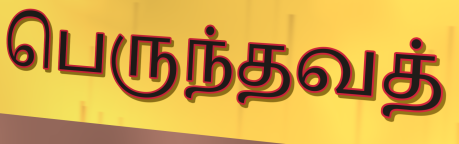
பெருந்தவத்